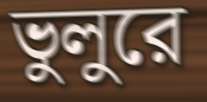
ভুলুরে